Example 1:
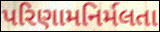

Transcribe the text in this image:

પરિણામનિર્મલતા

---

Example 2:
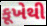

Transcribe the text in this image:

કૂખેથી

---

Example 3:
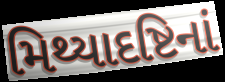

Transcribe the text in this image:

મિથ્યાદષ્ટિનાં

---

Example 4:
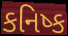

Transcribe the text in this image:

કનિષ્ક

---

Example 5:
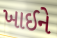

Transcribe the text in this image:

ખાઈને